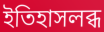
ইতিহাসলব্ধ